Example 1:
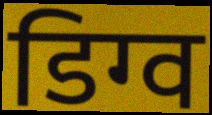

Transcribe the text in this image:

डिग्व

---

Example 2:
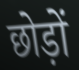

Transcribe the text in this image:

छोड़ों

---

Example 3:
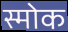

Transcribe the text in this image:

स्मोक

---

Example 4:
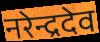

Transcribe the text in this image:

नरेन्द्रदेव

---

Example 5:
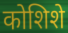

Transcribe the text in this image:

कोशिशे